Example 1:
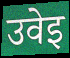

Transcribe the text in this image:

उवेइ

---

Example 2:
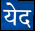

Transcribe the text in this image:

येद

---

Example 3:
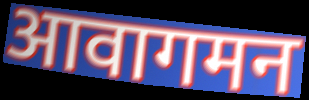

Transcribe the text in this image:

आवागमन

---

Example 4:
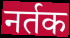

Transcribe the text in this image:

नर्तक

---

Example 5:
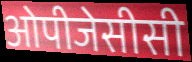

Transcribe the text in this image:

ओपीजेसीसी